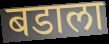
बडाला